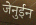
जेनुईन